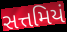
સત્તમિયં